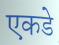
एकडे